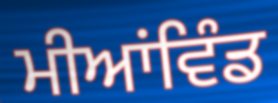
ਮੀਆਂਵਿੰਡ